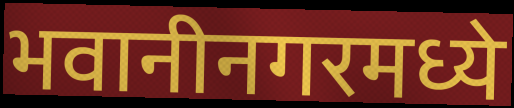
भवानीनगरमध्ये